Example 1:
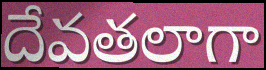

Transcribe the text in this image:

దేవతలాగా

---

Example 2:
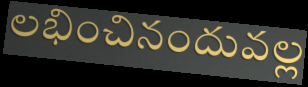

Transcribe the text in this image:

లభించినందువల్ల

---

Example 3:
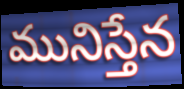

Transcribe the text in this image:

మునిస్తేన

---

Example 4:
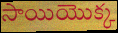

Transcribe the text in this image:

సాయియొక్క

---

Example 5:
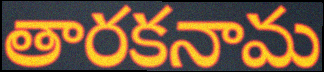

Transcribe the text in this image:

తారకనామ